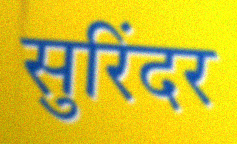
सुरिंदर